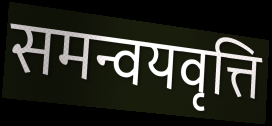
समन्वयवृत्ति